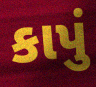
કાપું